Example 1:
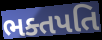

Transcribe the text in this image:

ભક્તપતિ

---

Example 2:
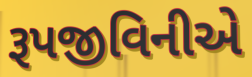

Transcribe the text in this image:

રૂપજીવિનીએ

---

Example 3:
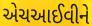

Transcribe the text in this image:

એચઆઈવીને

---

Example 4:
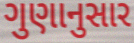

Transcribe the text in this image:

ગુણાનુસાર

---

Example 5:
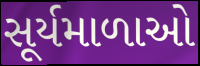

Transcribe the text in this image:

સૂર્યમાળાઓ